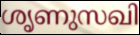
ശൃണുസഖി